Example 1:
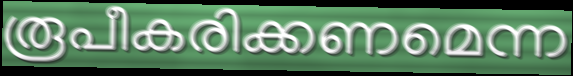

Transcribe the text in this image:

രൂപീകരിക്കണമെന്ന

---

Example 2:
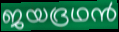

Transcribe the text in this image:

ജയദ്രഥൻ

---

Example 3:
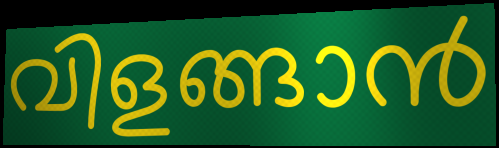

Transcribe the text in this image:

വിളങ്ങാൻ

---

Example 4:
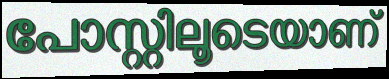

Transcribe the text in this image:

പോസ്റ്റിലൂടെയാണ്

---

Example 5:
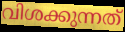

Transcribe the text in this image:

വിശക്കുന്നത്